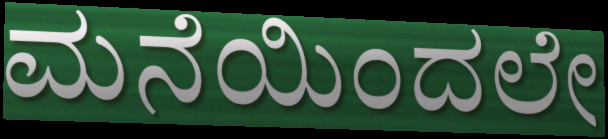
ಮನೆಯಿಂದಲೇ